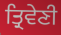
ਤ੍ਰਿਵੇਣੀ